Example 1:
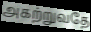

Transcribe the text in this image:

அகற்றுவதே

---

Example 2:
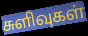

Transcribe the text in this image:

சுளிவுகள்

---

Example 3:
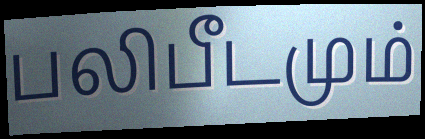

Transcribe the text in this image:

பலிபீடமும்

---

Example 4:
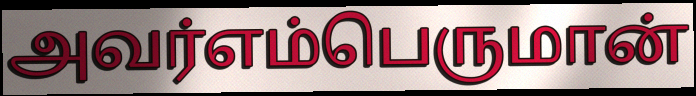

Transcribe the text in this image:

அவர்எம்பெருமான்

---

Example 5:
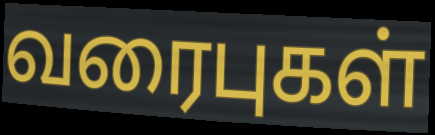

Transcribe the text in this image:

வரைபுகள்